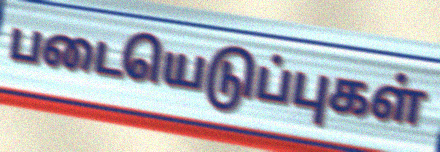
படையெடுப்புகள்